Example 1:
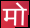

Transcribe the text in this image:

मो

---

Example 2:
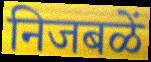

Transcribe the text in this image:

निजबळें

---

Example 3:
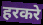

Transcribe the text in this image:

हरकरे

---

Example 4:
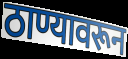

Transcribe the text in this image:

ठाण्यावरून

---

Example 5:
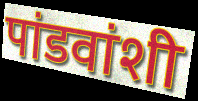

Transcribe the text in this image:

पांडवांशी